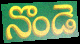
నొండె